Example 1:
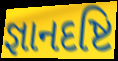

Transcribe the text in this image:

જ્ઞાનદષ્ટિ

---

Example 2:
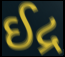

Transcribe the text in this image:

ઈદ્ર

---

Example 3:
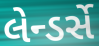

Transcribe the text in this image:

લેન્ડર્સે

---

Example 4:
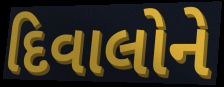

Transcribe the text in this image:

દિવાલોને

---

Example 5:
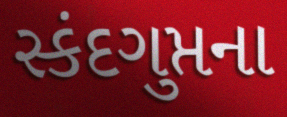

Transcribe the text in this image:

સ્કંદગુપ્તના